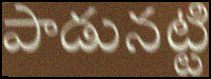
పాడునట్టి